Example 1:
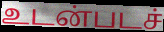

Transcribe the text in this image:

உடன்படச்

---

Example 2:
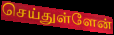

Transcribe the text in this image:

செய்துள்ளேன்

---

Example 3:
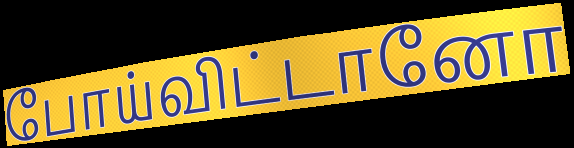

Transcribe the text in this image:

போய்விட்டானோ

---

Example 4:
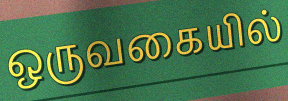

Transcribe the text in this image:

ஒருவகையில்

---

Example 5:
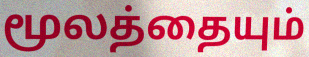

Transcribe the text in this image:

மூலத்தையும்